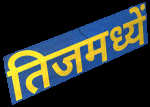
तिजमध्यें